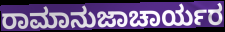
ರಾಮಾನುಜಾಚಾರ್ಯರ